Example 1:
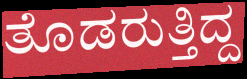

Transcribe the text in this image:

ತೊಡರುತ್ತಿದ್ದ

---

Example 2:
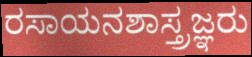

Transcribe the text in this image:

ರಸಾಯನಶಾಸ್ತ್ರಜ್ಞರು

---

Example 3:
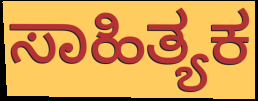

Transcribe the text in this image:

ಸಾಹಿತ್ಯಕ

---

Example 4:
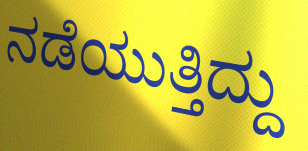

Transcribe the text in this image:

ನಡೆಯುತ್ತಿದ್ದು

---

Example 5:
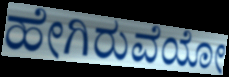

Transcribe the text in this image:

ಹೇಗಿರುವೆಯೋ